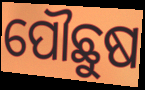
ପୌଛୁଷ